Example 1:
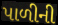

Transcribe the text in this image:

પાળીની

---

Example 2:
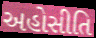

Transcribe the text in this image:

અહોસીતિ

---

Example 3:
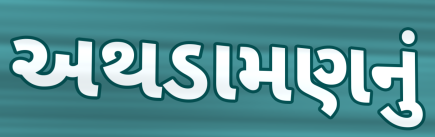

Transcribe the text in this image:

અથડામણનું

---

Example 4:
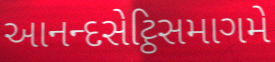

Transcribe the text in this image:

આનન્દસેટ્ઠિસમાગમે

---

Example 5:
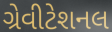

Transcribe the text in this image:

ગ્રેવીટેશનલ